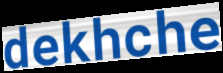
dekhche